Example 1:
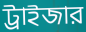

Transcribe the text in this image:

ট্রাইজার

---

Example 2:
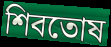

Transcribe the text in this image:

শিবতোষ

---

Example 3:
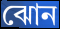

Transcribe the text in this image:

ঝোন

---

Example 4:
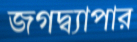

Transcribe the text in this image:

জগদ্ব্যাপার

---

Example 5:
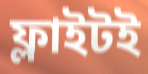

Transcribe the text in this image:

ফ্লাইটই